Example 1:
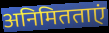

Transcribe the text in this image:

अनिमितताएं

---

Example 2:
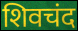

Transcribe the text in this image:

शिवचंद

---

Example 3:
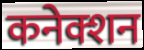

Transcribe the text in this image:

कनेक्‍शन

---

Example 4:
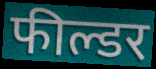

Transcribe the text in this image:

फील्डर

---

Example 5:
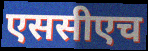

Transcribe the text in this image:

एससीएच